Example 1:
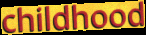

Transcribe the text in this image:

childhood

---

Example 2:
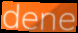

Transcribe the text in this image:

dene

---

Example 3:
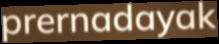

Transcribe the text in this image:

prernadayak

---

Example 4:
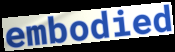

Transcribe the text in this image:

embodied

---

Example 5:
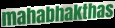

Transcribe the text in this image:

mahabhakthas